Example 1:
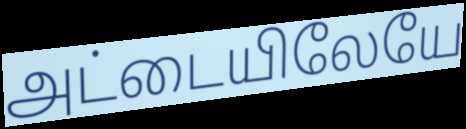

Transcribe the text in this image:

அட்டையிலேயே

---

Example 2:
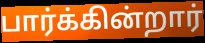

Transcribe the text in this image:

பார்க்கின்றார்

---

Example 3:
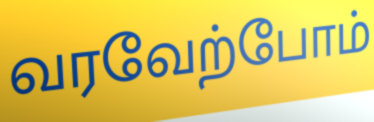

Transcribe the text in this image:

வரவேற்போம்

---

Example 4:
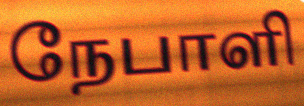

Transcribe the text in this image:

நேபாளி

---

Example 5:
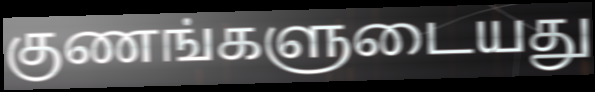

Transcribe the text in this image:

குணங்களுடையது